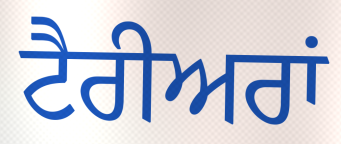
ਟੈਰੀਅਰਾਂ